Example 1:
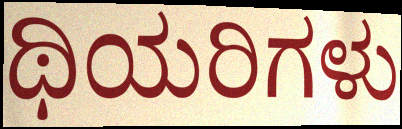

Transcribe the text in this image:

ಥಿಯರಿಗಳು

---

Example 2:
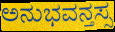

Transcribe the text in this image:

ಅನುಭವನ್ತಸ್ಸ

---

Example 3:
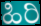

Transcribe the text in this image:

ಹಿರಿ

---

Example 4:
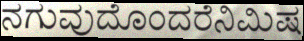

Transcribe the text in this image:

ನಗುವುದೊಂದರೆನಿಮಿಷ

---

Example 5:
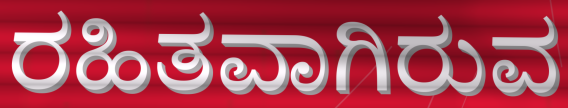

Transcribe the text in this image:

ರಹಿತವಾಗಿರುವ